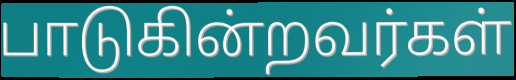
பாடுகின்றவர்கள்